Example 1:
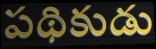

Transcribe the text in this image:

పథికుడు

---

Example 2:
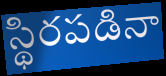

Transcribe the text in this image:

స్థిరపడినా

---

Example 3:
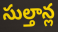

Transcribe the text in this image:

సుల్తాన్ల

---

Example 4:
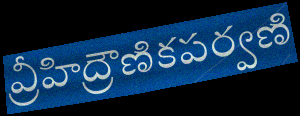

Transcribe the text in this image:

వ్రీహిద్రౌణికపర్వణి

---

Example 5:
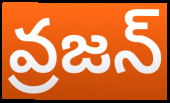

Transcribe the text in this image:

వ్రజన్